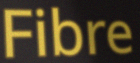
Fibre